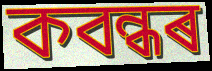
কবন্ধৰ